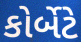
કોર્બેટે